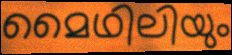
മൈഥിലിയും